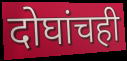
दोघांचही